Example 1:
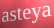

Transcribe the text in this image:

asteya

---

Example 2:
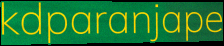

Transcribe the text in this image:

kdparanjape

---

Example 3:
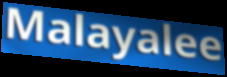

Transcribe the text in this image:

Malayalee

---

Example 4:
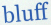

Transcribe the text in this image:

bluff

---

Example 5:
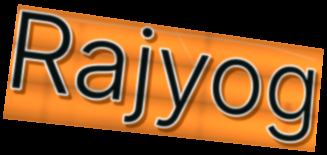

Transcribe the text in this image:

Rajyog